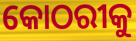
କୋଠରୀକୁ